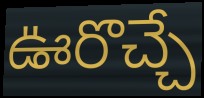
ఊరొచ్చే